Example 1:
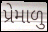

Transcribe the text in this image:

પ્રેમાળુ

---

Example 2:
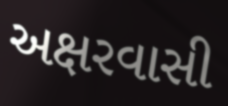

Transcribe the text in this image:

અક્ષરવાસી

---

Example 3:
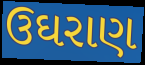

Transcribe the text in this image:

ઉઘરાણ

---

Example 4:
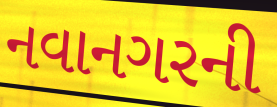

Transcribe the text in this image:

નવાનગરની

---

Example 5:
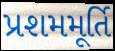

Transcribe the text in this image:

પ્રશમમૂર્તિ